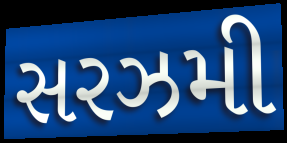
સરઝમી